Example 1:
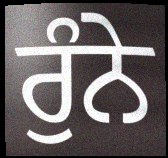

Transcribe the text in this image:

ਰੁੰਨੇ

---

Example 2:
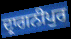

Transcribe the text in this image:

ਦ੍ਰਾਗਨੀਪੁਰ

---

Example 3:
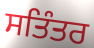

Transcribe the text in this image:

ਸਤਿੰਤਰ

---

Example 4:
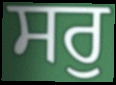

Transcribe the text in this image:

ਸਰੁ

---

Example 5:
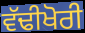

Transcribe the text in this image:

ਵੱਢੀਖੋਰੀ